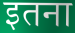
इतना